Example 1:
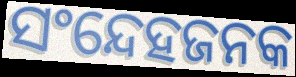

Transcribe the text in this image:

ସଂନ୍ଦେହଜନକ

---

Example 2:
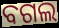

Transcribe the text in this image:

ବଗଲ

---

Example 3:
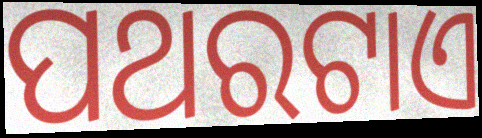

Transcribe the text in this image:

ପଥରଟାଏ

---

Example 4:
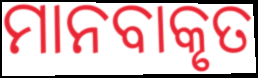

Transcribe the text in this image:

ମାନବାକୃତ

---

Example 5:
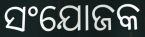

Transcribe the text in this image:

ସଂଯୋଜକ